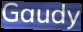
Gaudy